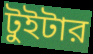
টুইটার